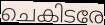
ചെകിടരേ